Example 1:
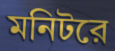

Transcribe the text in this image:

মনিটরে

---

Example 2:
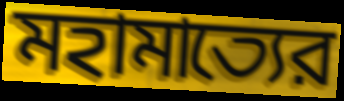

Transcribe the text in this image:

মহামাত্যের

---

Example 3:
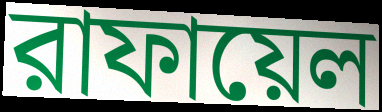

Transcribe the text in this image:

রাফায়েল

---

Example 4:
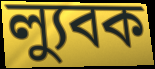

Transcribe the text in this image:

ল্যুবক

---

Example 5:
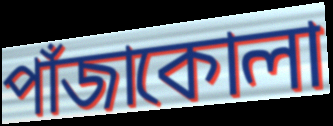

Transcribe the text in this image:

পাঁজাকোলা